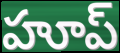
హూప్